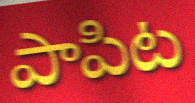
పాపిట